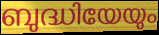
ബുദ്ധിയേയും